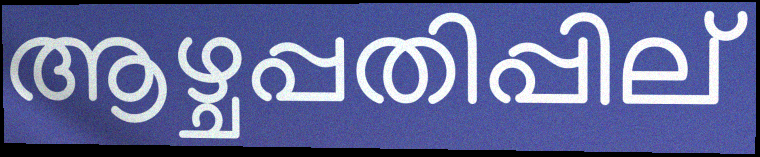
ആഴ്ചപ്പതിപ്പില്